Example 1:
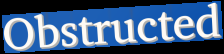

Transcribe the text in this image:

Obstructed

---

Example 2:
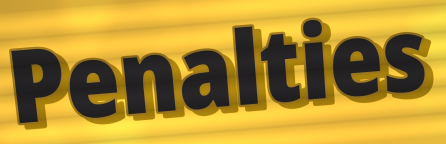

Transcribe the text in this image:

Penalties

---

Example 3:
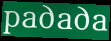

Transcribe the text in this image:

padada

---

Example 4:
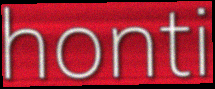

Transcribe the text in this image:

honti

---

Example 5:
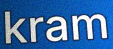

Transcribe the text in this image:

kram